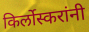
किर्लोस्करांनी